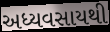
અધ્યવસાયથી